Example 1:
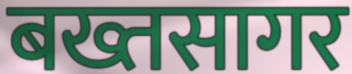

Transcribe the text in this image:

बख्तसागर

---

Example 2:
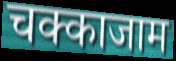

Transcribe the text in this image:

चक्काजाम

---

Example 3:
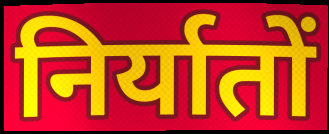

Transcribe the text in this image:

निर्यातों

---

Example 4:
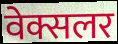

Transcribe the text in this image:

वेक्सलर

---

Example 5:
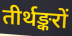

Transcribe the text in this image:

तीर्थङ्करों